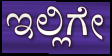
ಇಲ್ಲಿಗೇ